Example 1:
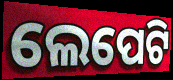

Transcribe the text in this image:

ଲେପେଟି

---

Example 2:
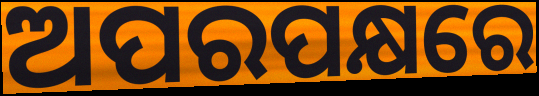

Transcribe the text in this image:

ଅପରପକ୍ଷରେ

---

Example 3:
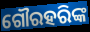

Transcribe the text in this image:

ଗୌରହରିଙ୍କ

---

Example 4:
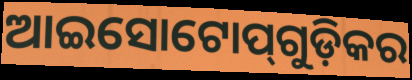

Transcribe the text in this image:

ଆଇସୋଟୋପ୍‌ଗୁଡ଼ିକର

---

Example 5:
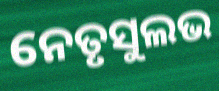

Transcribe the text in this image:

ନେତୃସୁଲଭ